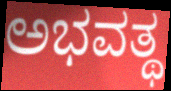
ಅಭವತ್ಥ